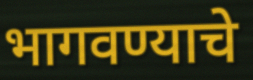
भागवण्याचे